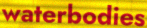
waterbodies